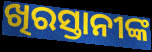
ଖିରସ୍ତାନୀଙ୍କ